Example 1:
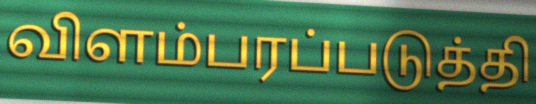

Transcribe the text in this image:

விளம்பரப்படுத்தி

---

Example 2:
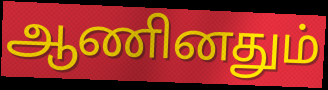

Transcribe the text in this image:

ஆணினதும்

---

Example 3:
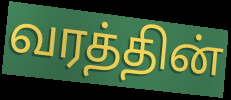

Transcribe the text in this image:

வரத்தின்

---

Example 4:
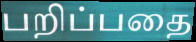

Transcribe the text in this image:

பறிப்பதை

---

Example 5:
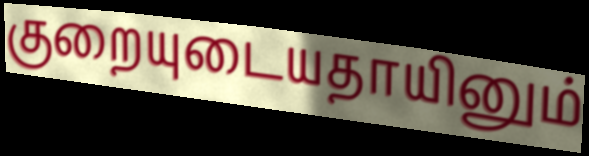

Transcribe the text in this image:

குறையுடையதாயினும்